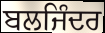
ਬਲਜਿੰਦਰ